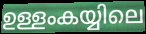
ഉള്ളംകയ്യിലെ